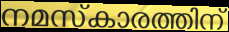
നമസ്‌കാരത്തിന്